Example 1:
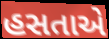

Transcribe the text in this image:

હસતાએ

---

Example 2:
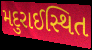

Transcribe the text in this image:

મદુરાઈસ્થિત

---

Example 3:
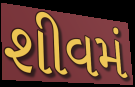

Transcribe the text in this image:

શીવમં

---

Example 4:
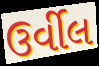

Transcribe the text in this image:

ઉર્વીલ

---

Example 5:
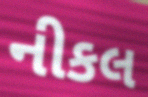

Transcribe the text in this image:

નીકલ